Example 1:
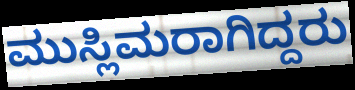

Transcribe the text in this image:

ಮುಸ್ಲಿಮರಾಗಿದ್ದರು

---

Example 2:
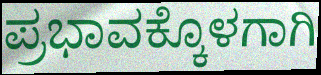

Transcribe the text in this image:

ಪ್ರಭಾವಕ್ಕೊಳಗಾಗಿ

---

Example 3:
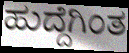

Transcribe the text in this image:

ಹುದ್ದೆಗಿಂತ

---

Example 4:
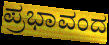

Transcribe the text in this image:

ಪ್ರಭಾವಂದ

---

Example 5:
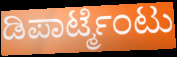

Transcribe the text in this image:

ಡಿಪಾರ್ಟ್ಮೆಂಟು